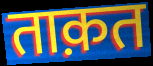
ताक़त